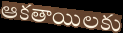
ఆకతాయిలకు